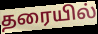
தரையில்